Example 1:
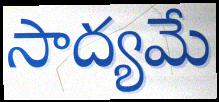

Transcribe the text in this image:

సాద్యమే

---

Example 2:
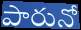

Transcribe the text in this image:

పారునో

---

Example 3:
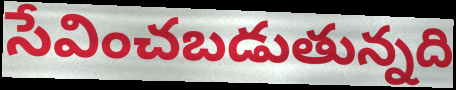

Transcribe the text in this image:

సేవించబడుతున్నది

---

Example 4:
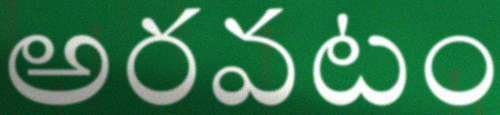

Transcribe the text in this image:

అరవటం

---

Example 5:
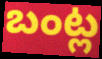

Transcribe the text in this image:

బంట్ల